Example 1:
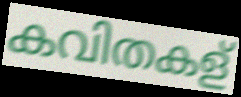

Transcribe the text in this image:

കവിതകള്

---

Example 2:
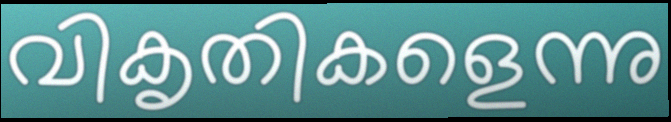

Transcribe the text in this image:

വികൃതികളെന്നു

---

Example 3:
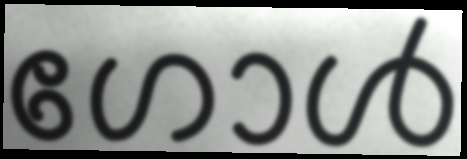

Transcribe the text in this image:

ഗോൾ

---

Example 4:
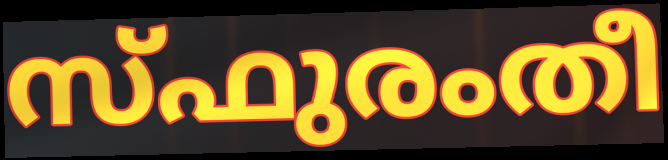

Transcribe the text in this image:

സ്ഫുരംതീ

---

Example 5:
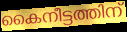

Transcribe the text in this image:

കൈനീട്ടത്തിന്